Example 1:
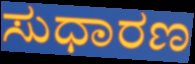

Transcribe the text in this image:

ಸುಧಾರಣ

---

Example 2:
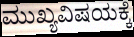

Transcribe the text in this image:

ಮುಖ್ಯವಿಷಯಕ್ಕೆ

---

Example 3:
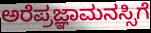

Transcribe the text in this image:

ಅರೆಪ್ರಜ್ಞಾಮನಸ್ಸಿಗೆ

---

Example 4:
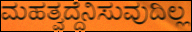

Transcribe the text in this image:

ಮಹತ್ವದ್ದೆನಿಸುವುದಿಲ್ಲ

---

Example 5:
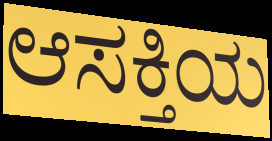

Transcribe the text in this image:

ಆಸಕ್ತಿಯ